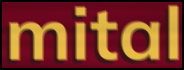
mital